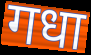
गधा